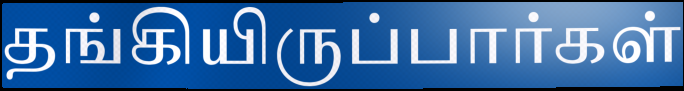
தங்கியிருப்பார்கள்